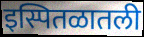
इस्पितळातली